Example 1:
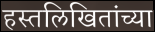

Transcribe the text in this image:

हस्तलिखितांच्या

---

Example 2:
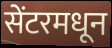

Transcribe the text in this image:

सेंटरमधून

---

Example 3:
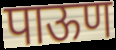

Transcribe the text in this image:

पाऊण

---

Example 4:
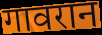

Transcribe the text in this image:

गावरान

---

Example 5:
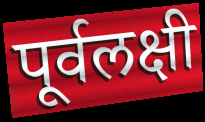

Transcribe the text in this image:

पूर्वलक्षी